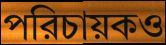
পরিচায়কও